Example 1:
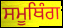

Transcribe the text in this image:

ਸਮੂਥਿੰਗ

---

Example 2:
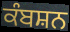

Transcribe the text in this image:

ਕੰਬਸ਼ਨ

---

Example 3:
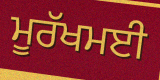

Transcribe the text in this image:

ਮੂਰੱਖਮਈ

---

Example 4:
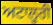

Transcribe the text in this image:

ਅਟਾਲੂਰੀ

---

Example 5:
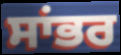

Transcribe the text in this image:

ਸਾਂਭਰ